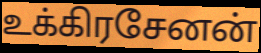
உக்கிரசேனன்